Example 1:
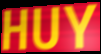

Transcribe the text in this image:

HUY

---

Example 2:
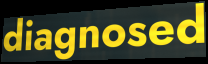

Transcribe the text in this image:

diagnosed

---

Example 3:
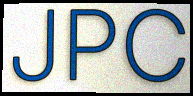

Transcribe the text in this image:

JPC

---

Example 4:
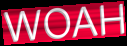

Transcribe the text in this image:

WOAH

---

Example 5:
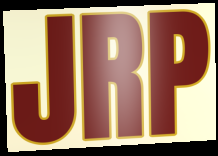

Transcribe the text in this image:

JRP